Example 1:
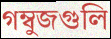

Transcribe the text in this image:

গম্বুজগুলি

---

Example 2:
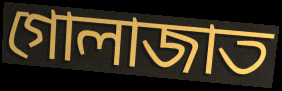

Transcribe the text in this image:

গোলাজাত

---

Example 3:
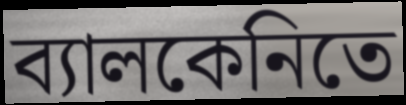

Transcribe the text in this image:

ব্যালকেনিতে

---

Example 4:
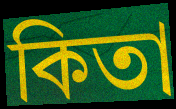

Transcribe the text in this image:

কিতা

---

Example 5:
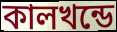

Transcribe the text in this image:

কালখন্ডে